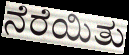
ನೆರೆಯಿತು